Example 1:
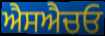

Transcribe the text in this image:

ਐਸਐਚਓ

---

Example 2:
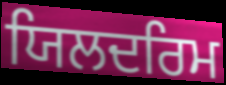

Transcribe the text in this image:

ਯਿਲਦਰਿਮ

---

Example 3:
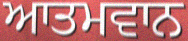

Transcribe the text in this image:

ਆਤਮਵਾਨ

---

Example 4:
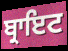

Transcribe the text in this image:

ਬ੍ਰਾਇਟ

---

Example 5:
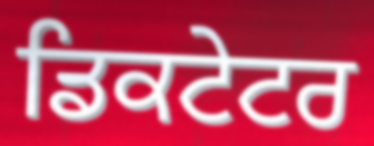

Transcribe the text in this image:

ਡਿਕਟੇਟਰ